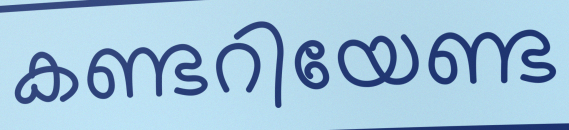
കണ്ടറിയേണ്ട